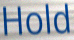
Hold